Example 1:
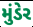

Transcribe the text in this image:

મુંડેર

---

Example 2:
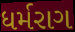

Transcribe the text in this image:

ધર્મરાગ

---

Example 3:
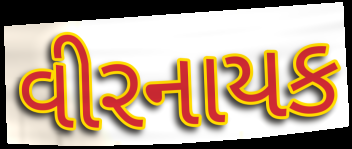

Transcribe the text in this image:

વીરનાયક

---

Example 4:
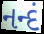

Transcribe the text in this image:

નન્દં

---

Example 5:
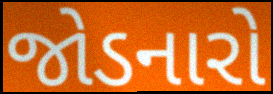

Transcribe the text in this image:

જોડનારો